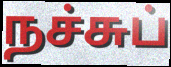
நச்சுப்